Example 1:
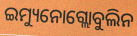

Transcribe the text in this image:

ଇମ୍ୟୁନୋଗ୍ଲୋବୁଲିନ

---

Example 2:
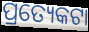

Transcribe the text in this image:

ପ୍ରତ୍ୟେକଟା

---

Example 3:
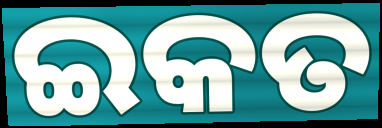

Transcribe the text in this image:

ଇକତ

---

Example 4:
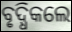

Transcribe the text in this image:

ବୃଦ୍ଧିକଲେ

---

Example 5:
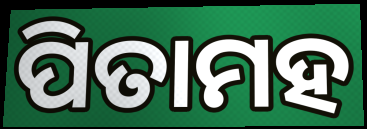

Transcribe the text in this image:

ପିତାମହ